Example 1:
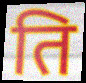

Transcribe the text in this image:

ति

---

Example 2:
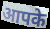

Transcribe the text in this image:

आपके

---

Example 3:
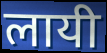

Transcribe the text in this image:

लायी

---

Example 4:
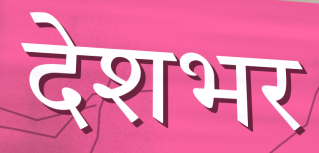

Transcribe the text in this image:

देशभर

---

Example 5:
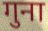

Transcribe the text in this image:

गुना